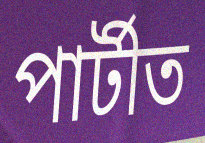
পাৰ্টীত